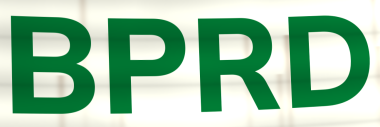
BPRD